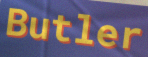
Butler